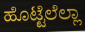
ಹೊಟ್ಟೆಲೆಲ್ಲಾ